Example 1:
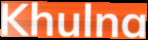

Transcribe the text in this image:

Khulna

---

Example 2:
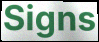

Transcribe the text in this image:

Signs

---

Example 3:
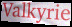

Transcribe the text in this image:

Valkyrie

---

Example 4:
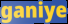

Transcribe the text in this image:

ganiye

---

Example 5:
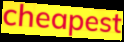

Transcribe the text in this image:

cheapest